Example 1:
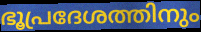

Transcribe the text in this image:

ഭൂപ്രദേശത്തിനും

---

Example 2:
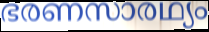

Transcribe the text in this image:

ഭരണസാരഥ്യം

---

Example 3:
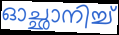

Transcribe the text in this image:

ഓച്ഛാനിച്ച്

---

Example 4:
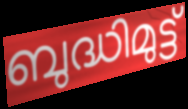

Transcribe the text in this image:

ബുദ്ധിമുട്ട്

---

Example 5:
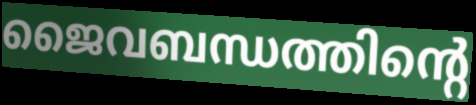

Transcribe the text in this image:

ജൈവബന്ധത്തിന്റെ